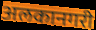
अलकानगरी